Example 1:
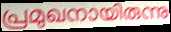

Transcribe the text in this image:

പ്രമുഖനായിരുന്നു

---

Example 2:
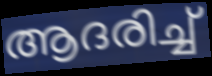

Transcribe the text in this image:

ആദരിച്ച്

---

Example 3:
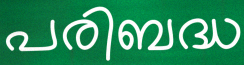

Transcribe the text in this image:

പരിബദ്ധ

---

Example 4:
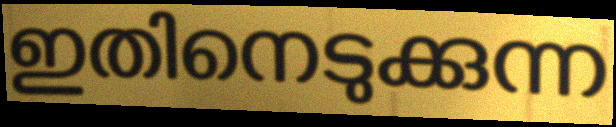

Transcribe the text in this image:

ഇതിനെടുക്കുന്ന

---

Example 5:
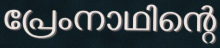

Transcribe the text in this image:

പ്രേംനാഥിന്റെ